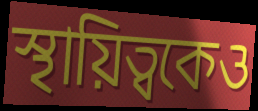
স্থায়িত্বকেও